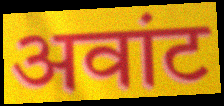
अवांट